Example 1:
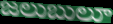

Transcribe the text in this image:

జలుబులూ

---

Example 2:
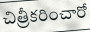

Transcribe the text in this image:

చిత్రీకరించారో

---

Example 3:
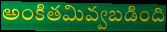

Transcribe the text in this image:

అంకితమివ్వబడింది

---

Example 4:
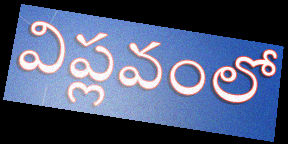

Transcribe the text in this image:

విప్లవంలో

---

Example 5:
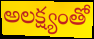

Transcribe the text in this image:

అలక్ష్యంతో